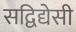
सद्विद्येसी